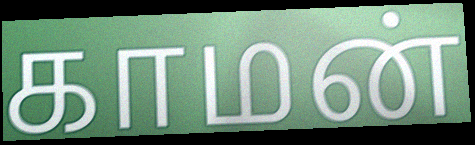
காமன்